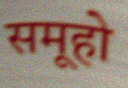
समूहो